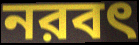
নরবৎ